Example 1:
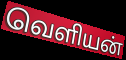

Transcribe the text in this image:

வெளியன்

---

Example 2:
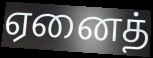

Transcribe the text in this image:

ஏனைத்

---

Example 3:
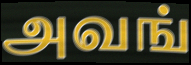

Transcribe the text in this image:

அவங்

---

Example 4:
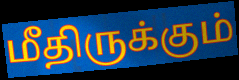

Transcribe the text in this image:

மீதிருக்கும்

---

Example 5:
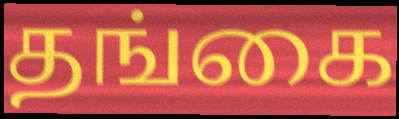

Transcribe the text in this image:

தங்கை